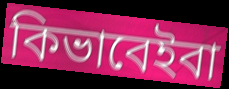
কিভাবেইবা